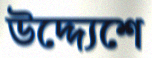
উদ্দ্যেশে